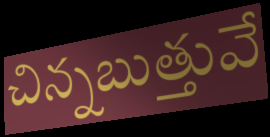
చిన్నబుత్తువే